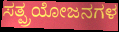
ಸತ್ಪ್ರಯೋಜನಗಳ